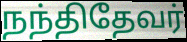
நந்திதேவர்